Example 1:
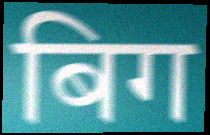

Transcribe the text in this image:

बिग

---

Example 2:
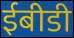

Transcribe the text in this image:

ईबीडी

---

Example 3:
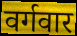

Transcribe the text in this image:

वर्गवार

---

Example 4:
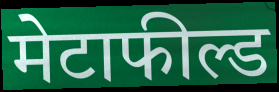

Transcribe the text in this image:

मेटाफील्ड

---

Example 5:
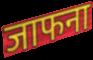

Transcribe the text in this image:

जाफना